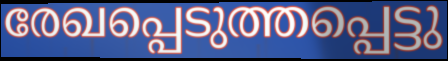
രേഖപ്പെടുത്തപ്പെട്ടു